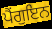
ਪੈਂਗੁਇਨ